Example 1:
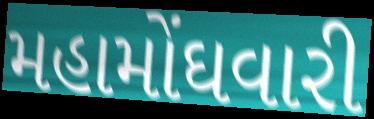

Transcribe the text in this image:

મહામોંઘવારી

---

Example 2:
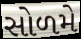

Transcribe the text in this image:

સોળમે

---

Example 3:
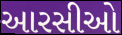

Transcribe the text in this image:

આરસીઓ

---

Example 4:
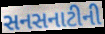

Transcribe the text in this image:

સનસનાટીની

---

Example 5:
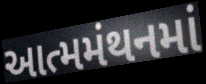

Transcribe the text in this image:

આત્મમંથનમાં